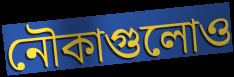
নৌকাগুলোও